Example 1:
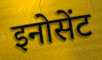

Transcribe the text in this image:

इनोसेंट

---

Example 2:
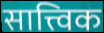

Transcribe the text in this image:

सात्त्विक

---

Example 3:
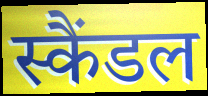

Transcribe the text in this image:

स्कैंडल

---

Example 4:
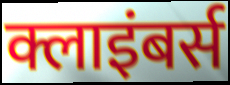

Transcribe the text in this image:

क्लाइंबर्स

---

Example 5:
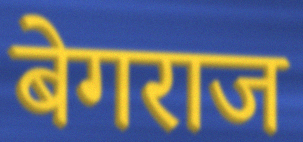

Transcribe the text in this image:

बेगराज